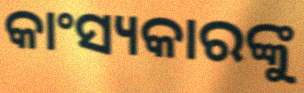
କାଂସ୍ୟକାରଙ୍କୁ